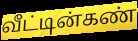
வீட்டின்கண்